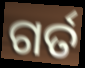
ଗର୍ତ